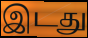
இடது